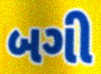
બગી